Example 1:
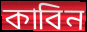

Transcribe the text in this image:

কাবিন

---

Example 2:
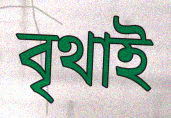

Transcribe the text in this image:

বৃথাই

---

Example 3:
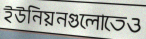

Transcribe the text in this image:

ইউনিয়নগুলোতেও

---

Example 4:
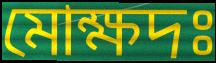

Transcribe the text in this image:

মোক্ষদঃ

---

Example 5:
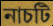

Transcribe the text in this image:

নাচটি